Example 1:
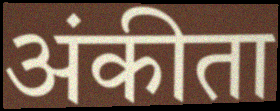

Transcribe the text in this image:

अंकीता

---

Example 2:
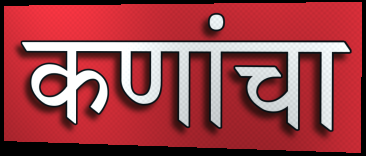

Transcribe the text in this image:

कणांचा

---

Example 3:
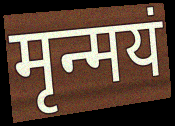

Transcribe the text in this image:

मृन्मयं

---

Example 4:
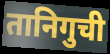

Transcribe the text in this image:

तानिगुची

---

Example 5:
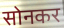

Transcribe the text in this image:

सोनकर